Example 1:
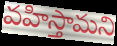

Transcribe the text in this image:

వహిస్తామని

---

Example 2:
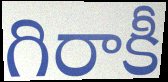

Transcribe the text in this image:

గిరాకీ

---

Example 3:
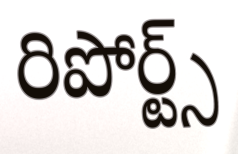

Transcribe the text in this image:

రిపోర్ట్స్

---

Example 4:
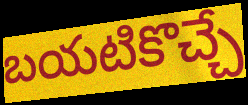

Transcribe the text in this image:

బయటికొచ్చే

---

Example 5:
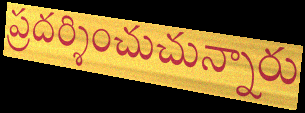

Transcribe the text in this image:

ప్రదర్శించుచున్నారు